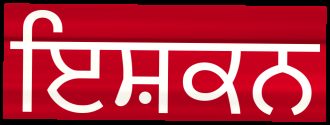
ਇਸ਼ਕਨ